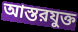
আস্তরযুক্ত